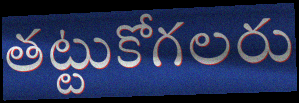
తట్టుకోగలరు